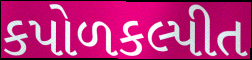
કપોળકલ્પીત